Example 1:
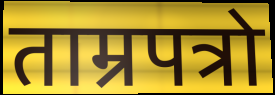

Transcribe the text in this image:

ताम्रपत्रो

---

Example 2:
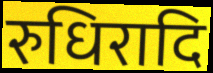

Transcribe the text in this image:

रुधिरादि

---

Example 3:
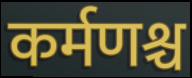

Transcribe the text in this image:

कर्मणश्च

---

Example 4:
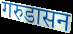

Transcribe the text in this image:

गरुडासन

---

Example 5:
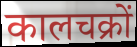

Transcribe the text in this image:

कालचक्रों